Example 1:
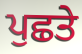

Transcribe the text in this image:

ਪੁਛਤੇ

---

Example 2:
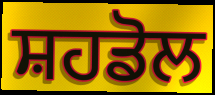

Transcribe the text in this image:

ਸ਼ਹਡੋਲ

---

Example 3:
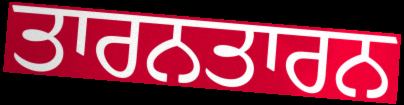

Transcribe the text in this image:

ਤਾਰਨਤਾਰਨ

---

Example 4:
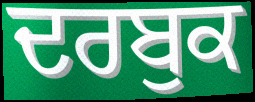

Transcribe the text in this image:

ਦਰਬੁਕ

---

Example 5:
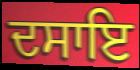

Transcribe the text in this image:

ਦਸਾਇ